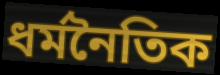
ধর্মনৈতিক